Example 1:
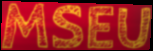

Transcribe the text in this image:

MSEU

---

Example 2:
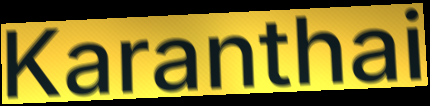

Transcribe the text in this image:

Karanthai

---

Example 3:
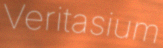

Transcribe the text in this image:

Veritasium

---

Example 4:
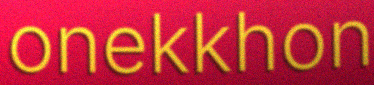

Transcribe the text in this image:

onekkhon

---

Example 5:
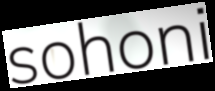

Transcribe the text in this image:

sohoni